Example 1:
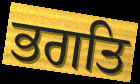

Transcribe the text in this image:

ਭਗਤਿ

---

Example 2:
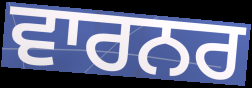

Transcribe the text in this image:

ਵਾਰਨਰ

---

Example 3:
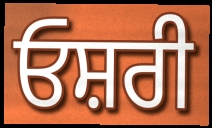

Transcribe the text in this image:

ਓਸ਼ਰੀ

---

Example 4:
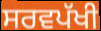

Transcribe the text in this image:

ਸਰਵਪੱਖੀ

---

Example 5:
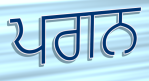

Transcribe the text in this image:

ਪਗਨ